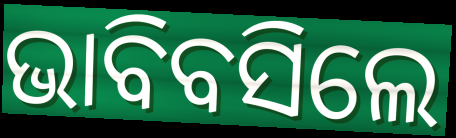
ଭାବିବସିଲେ